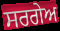
ਸਰਗੇਅ